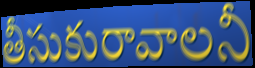
తీసుకురావాలనీ